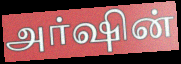
அர்ஷின்